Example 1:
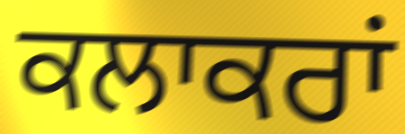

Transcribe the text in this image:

ਕਲਾਕਰਾਂ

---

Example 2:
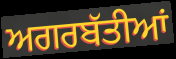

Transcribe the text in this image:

ਅਗਰਬੱਤੀਆਂ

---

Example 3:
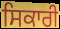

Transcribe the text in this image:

ਸਿਕਾਰੀ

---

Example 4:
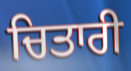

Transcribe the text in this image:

ਚਿਤਾਰੀ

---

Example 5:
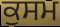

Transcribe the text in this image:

ਕੁਸਮ